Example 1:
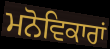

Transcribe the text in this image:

ਮਨੋਵਿਕਾਰਾਂ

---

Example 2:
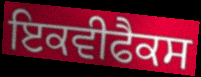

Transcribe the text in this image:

ਇਕਵੀਫੈਕਸ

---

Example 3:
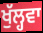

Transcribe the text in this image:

ਖੁੱਲ੍ਹਵਾ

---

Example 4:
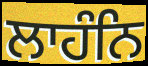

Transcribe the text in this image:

ਲਾਹੰਨਿ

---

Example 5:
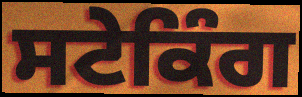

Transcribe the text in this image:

ਸਟੇਕਿੰਗ